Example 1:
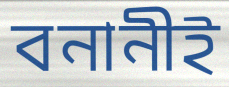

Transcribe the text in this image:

বনানীই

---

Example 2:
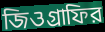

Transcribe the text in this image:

জিওগ্রাফির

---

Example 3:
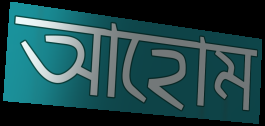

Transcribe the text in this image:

আহোম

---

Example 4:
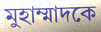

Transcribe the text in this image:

মুহাম্মাদকে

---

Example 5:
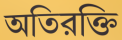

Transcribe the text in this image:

অতিরক্তি